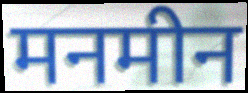
मनमीन